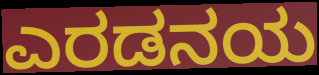
ಎರಡನಯ